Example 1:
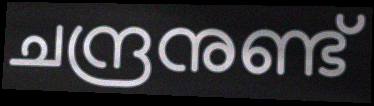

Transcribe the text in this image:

ചന്ദ്രനുണ്ട്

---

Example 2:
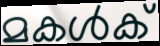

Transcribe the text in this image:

മകൾക്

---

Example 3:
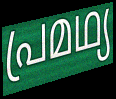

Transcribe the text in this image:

പ്രമഥ്യ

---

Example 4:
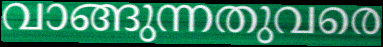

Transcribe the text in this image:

വാങ്ങുന്നതുവരെ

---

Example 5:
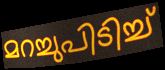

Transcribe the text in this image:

മറച്ചുപിടിച്ച്